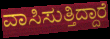
ವಾಸಿಸುತ್ತಿದ್ದಾರೆ